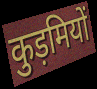
कुड़मियों